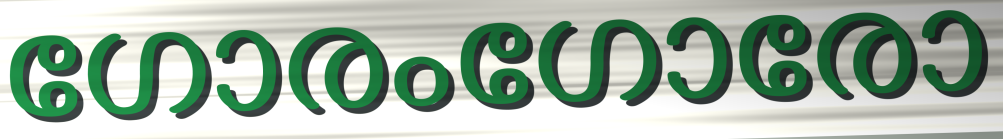
ഗോരംഗോരോ